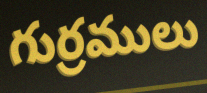
గుర్రములు